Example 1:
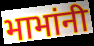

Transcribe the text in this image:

भाभांनी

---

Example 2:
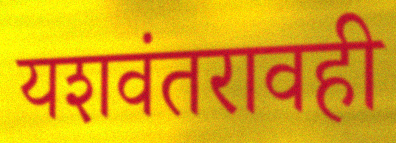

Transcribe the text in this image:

यशवंतरावही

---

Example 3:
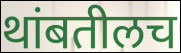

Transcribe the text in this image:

थांबतीलच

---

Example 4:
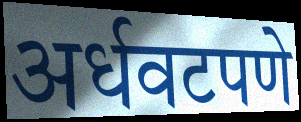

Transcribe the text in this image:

अर्धवटपणे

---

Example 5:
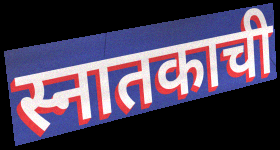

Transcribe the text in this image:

स्नातकाची